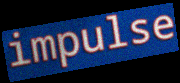
impulse